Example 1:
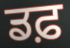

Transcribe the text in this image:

ਡਫ਼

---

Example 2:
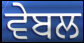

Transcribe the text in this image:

ਵੇਬਲ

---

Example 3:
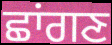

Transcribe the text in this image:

ਛਾਂਗਣ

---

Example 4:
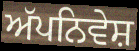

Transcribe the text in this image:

ਅੱਪਨਿਵੇਸ਼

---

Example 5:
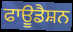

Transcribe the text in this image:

ਫਾਊਡੈਸ਼ਨ